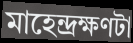
মাহেন্দ্রক্ষণটা